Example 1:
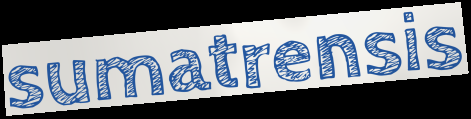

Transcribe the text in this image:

sumatrensis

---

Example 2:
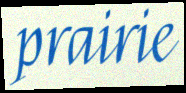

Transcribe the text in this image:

prairie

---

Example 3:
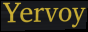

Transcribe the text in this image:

Yervoy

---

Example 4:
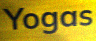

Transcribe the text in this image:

Yogas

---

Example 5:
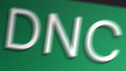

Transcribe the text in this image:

DNC